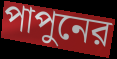
পাপুনের